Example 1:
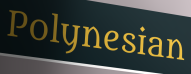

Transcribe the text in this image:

Polynesian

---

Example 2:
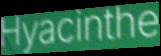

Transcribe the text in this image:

Hyacinthe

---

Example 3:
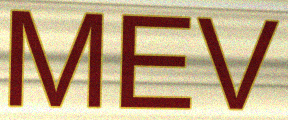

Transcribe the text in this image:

MEV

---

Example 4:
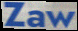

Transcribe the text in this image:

Zaw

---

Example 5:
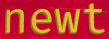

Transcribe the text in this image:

newt